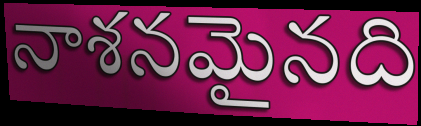
నాశనమైనది